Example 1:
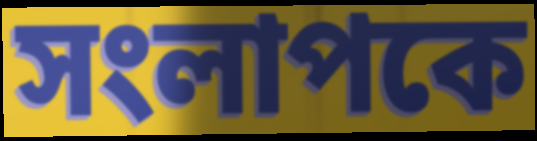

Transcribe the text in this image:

সংলাপকে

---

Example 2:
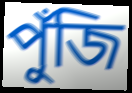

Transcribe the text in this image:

পুঁজি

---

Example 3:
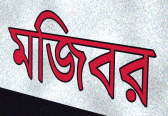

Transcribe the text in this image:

মজিবর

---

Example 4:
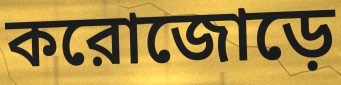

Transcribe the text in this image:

করোজোড়ে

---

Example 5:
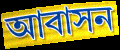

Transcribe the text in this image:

আবাসন